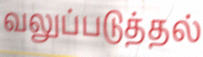
வலுப்படுத்தல்